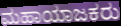
ಮಹಾಯಾಜಕರು